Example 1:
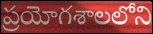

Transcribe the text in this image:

ప్రయోగశాలలోని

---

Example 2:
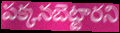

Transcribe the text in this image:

పక్కనబెట్టారని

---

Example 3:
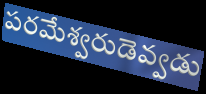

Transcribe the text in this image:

పరమేశ్వరుడెవ్వడు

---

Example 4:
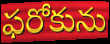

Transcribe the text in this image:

ఫరోకును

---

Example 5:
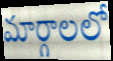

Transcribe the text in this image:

మార్గాలలో